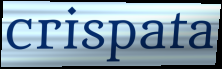
crispata